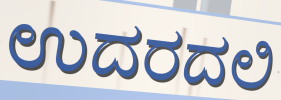
ಉದರದಲಿ